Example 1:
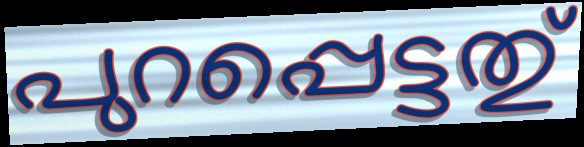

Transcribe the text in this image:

പുറപ്പെട്ടതു്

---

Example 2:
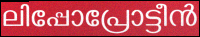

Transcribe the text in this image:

ലിപ്പോപ്രോട്ടീൻ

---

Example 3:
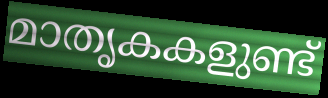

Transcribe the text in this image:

മാതൃകകളുണ്ട്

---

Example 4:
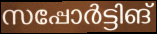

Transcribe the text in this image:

സപ്പോർട്ടിങ്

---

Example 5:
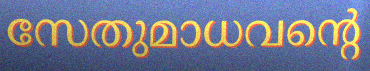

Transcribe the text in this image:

സേതുമാധവന്റെ